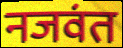
नजवंत